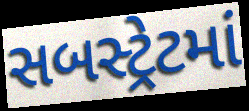
સબસ્ટ્રેટમાં